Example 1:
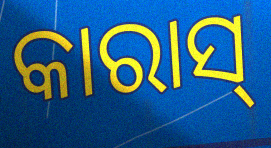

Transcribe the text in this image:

କାରାସ୍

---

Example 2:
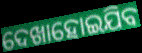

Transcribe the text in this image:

ଦେଖାହୋଇଯିବ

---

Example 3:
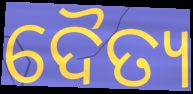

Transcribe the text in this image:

ଦୈତ୍ୟ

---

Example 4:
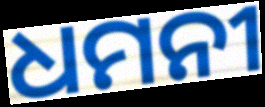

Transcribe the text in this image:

ଧମନୀ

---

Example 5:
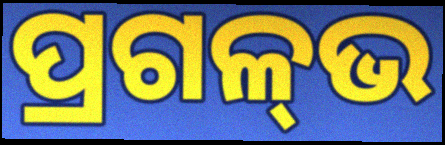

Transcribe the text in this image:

ପ୍ରଗଳ୍‌ଭ